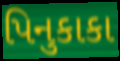
પિનુકાકા